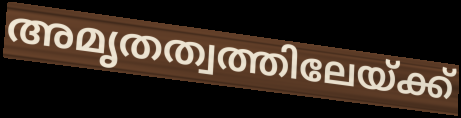
അമൃതത്വത്തിലേയ്ക്ക്